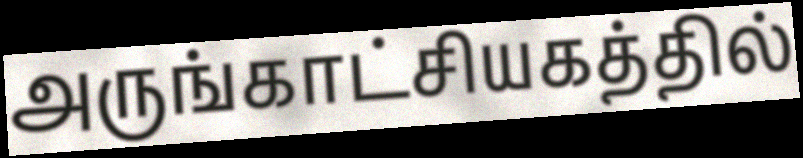
அருங்காட்சியகத்தில்